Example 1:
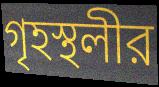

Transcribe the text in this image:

গৃহস্থলীর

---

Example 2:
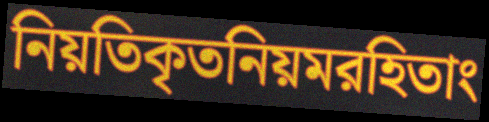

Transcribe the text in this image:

নিয়তিকৃতনিয়মরহিতাং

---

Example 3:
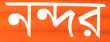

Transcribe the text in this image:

নন্দর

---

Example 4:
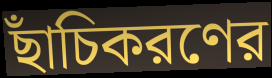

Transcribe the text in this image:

ছাঁচিকরণের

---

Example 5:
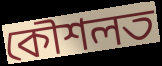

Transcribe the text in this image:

কৌশলত